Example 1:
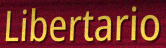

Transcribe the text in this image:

Libertario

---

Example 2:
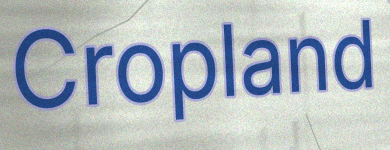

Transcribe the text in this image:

Cropland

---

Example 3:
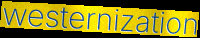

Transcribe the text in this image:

westernization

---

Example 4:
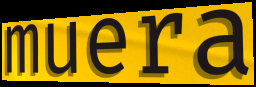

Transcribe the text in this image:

muera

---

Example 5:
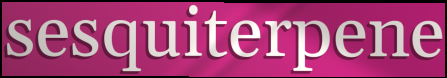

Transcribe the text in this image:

sesquiterpene